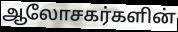
ஆலோசகர்களின்